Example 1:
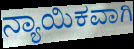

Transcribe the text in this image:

ನ್ಯಾಯಿಕವಾಗಿ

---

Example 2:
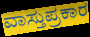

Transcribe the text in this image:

ವಾಸ್ತುಪ್ರಕಾರ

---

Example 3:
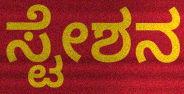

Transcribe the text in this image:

ಸ್ಟೇಶನ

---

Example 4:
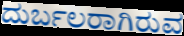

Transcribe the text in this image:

ದುರ್ಬಲರಾಗಿರುವ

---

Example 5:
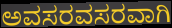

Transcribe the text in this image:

ಅವಸರವಸರವಾಗಿ